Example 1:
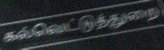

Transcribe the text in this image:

கல்வெட்டுத்துறை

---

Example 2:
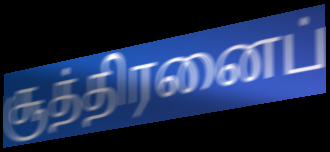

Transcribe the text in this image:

சூத்திரனைப்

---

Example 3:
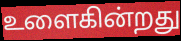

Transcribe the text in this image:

உளைகின்றது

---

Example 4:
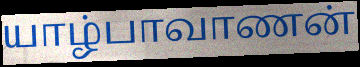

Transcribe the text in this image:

யாழ்பாவாணன்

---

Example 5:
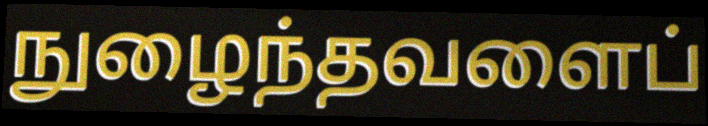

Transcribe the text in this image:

நுழைந்தவளைப்